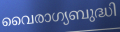
വൈരാഗ്യബുദ്ധി